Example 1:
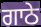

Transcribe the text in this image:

ਗਾਠੇ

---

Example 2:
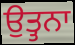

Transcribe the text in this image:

ਉਤ੍ਤਨਾ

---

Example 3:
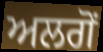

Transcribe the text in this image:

ਅਲਗੋਂ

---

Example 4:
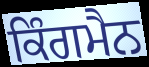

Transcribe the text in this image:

ਕਿੰਗਮੈਨ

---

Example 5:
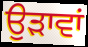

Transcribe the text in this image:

ਉੜਾਵਾਂ